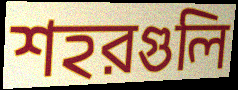
শহরগুলি